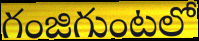
గంజిగుంటలో